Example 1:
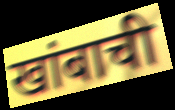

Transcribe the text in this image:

खांबाची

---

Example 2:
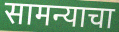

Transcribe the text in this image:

सामन्याचा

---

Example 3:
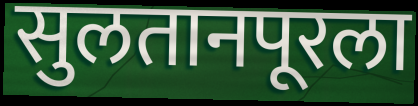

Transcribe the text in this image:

सुलतानपूरला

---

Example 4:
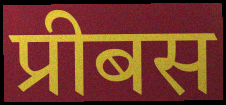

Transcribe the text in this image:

प्रीबस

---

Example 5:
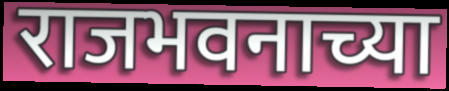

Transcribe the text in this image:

राजभवनाच्या